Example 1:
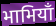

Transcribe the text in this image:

भाभियाँ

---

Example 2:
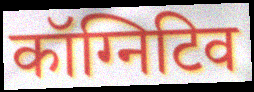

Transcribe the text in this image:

कॉग्निटिव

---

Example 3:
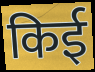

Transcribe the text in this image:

किई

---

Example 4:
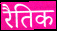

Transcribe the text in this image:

रैतिक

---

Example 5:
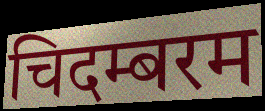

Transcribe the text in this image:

चिदम्बरम